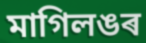
মাগিলঙৰ